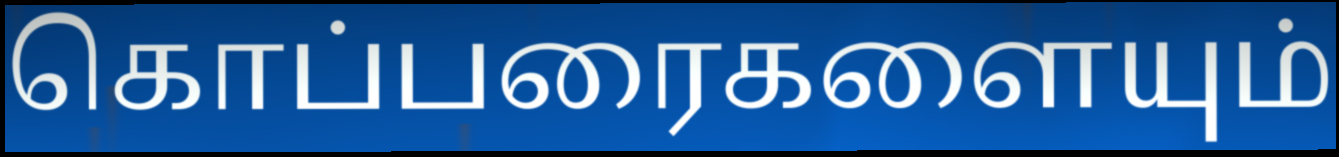
கொப்பரைகளையும்